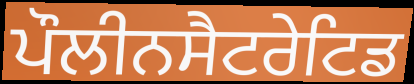
ਪੌਲੀਨਸੈਟਰੇਟਿਡ